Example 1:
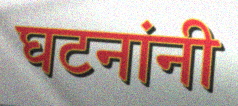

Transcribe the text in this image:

घटनांनी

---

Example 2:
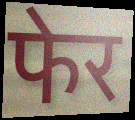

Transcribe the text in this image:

फेर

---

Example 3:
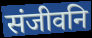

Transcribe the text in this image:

संजीवनि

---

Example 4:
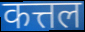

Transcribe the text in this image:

कत्तल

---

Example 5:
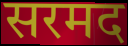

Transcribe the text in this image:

सरमद